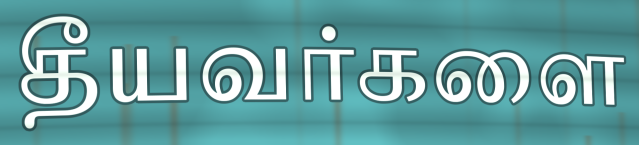
தீயவர்களை